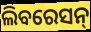
ଲିବରେସନ୍